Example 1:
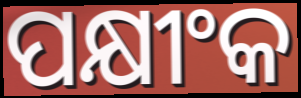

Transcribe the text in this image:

ପକ୍ଷୀଂକ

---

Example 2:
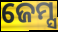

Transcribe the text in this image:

ଜେମ୍ସ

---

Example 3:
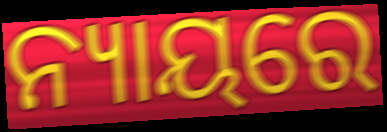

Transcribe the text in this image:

ନ୍ୟାୟରେ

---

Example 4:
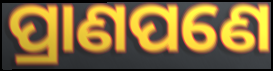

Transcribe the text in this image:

ପ୍ରାଣପଣେ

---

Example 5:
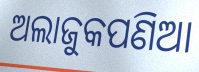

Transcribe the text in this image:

ଅଲାଜୁକପଣିଆ